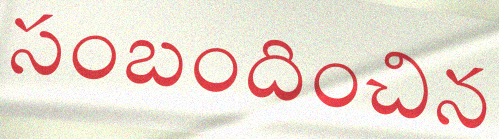
సంబందించిన